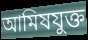
আমিষযুক্ত